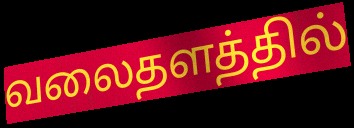
வலைதளத்தில்